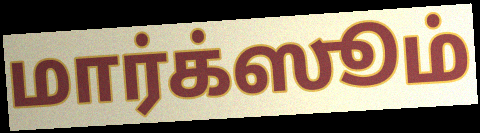
மார்க்ஸூம்